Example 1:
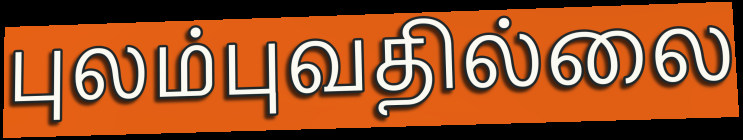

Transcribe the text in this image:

புலம்புவதில்லை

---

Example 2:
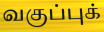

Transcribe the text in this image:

வகுப்புக்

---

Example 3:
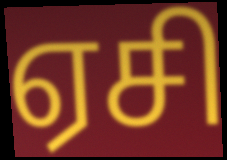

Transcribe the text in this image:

ஏசி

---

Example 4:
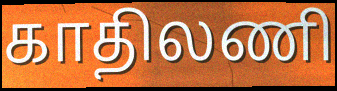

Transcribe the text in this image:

காதிலணி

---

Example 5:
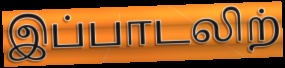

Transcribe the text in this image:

இப்பாடலிற்